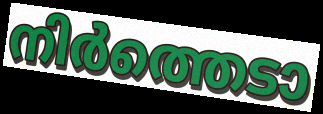
നിർത്തെടാ